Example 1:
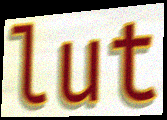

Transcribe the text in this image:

lut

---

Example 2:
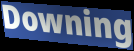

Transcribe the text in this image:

Downing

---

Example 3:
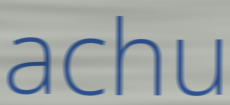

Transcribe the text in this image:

achu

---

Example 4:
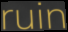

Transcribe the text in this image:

ruin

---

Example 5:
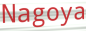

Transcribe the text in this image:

Nagoya